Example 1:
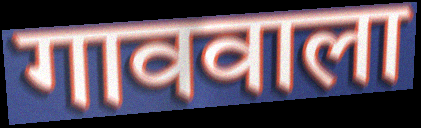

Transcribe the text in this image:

गाववाला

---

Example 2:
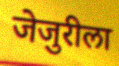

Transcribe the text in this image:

जेजुरीला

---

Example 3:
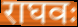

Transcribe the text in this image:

राघवः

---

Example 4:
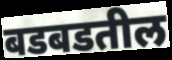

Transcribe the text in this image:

बडबडतील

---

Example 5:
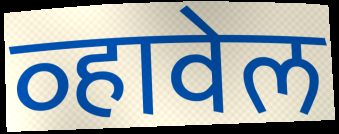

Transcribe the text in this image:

व्हावेल